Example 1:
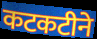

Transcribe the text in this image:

कटकटीने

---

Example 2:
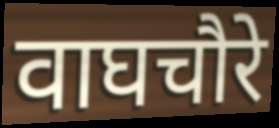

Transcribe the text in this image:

वाघचौरे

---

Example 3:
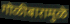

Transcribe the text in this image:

गोळीबारामुळे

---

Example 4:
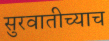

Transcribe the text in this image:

सुरवातीच्याच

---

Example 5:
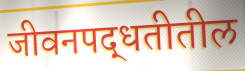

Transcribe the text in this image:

जीवनपद्धतीतील